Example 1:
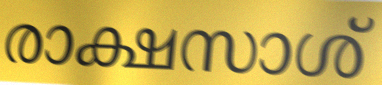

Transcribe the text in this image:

രാക്ഷസാശ്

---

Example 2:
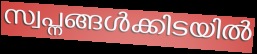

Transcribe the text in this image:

സ്വപ്നങ്ങൾക്കിടയിൽ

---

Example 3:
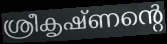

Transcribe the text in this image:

ശ്രീകൃഷ്‌ണന്റെ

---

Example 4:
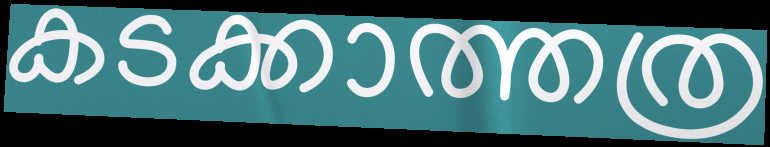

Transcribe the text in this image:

കടക്കാത്തത്ര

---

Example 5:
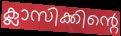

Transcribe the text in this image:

ക്ലാസിക്കിന്റെ